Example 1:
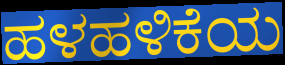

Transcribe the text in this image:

ಹಳಹಳಿಕೆಯ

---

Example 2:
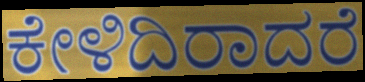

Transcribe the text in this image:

ಕೇಳಿದಿರಾದರೆ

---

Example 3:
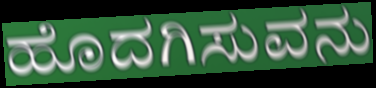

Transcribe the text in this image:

ಹೊದಗಿಸುವನು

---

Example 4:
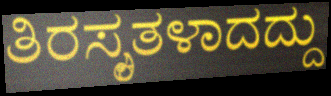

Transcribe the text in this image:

ತಿರಸ್ಕೃತಳಾದದ್ದು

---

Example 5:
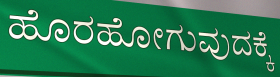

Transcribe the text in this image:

ಹೊರಹೋಗುವುದಕ್ಕೆ